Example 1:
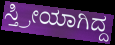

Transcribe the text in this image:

ಸ್ತ್ರೀಯಾಗಿದ್ದ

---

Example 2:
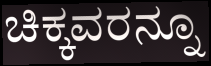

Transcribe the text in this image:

ಚಿಕ್ಕವರನ್ನೂ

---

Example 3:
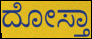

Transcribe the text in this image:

ದೋಸ್ತಾ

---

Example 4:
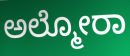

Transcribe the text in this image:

ಅಲ್ಮೋರಾ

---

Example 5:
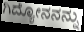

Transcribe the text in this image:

ಗಿದ್ಯೋನನನ್ನು